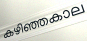
കഴിഞ്ഞകാല